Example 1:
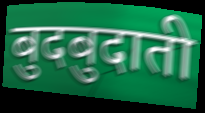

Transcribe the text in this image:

बुदबुदाती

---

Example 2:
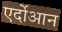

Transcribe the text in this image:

एर्दोआन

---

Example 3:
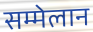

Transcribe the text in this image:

सम्मेलान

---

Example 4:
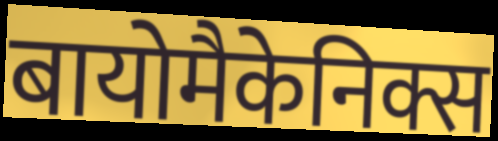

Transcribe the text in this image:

बायोमैकेनिक्स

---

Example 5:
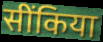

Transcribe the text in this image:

सींकिया